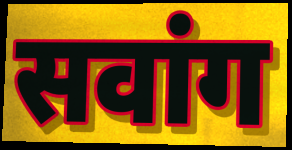
सवांग